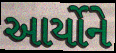
આર્યોને